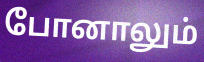
போனாலும்